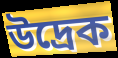
উদ্রেক